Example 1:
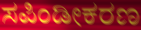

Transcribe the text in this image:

ಸಪಿಂಡೀಕರಣ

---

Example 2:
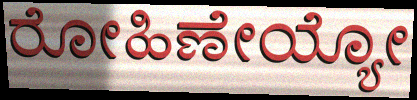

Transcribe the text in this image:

ರೋಹಿಣೇಯ್ಯೋ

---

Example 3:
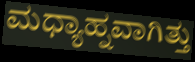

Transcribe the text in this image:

ಮಧ್ಯಾಹ್ನವಾಗಿತ್ತು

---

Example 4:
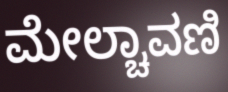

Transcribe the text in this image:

ಮೇಲ್ಚಾವಣಿ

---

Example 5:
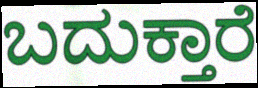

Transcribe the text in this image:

ಬದುಕ್ತಾರೆ